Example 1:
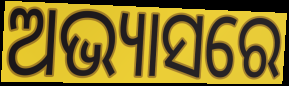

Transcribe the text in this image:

ଅଭ୍ୟାସରେ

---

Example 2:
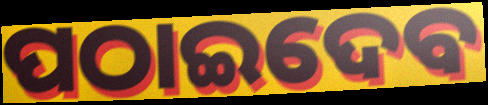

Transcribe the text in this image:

ପଠାଇଦେବ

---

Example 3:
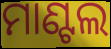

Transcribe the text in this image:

ମାଣ୍ଟଲ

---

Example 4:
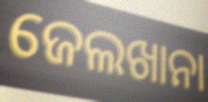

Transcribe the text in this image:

ଜେଲଖାନା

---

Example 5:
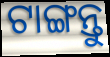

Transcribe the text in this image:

ଟାଙ୍ଗନ୍ତୁ